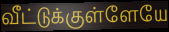
வீட்டுக்குள்ளேயே